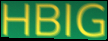
HBIG